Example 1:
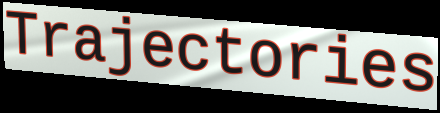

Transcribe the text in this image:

Trajectories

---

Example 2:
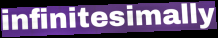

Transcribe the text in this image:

infinitesimally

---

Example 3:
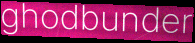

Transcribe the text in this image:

ghodbunder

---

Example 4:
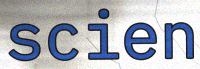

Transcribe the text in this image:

scien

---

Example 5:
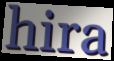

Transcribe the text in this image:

hira